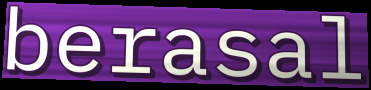
berasal